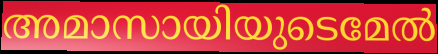
അമാസായിയുടെമേൽ